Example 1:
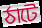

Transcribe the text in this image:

ঠাটে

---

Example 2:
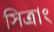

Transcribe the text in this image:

সিত্রাং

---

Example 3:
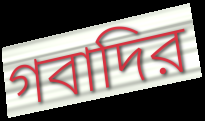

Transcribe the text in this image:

গবাদির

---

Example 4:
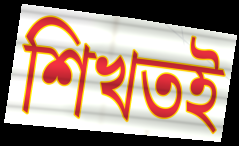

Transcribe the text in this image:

শিখতই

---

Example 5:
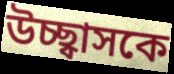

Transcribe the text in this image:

উচ্ছ্বাসকে